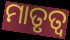
ମାତୃତ୍ୱ